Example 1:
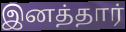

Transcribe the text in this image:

இனத்தார்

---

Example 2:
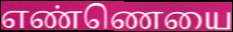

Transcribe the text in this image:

எண்ணெயை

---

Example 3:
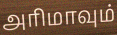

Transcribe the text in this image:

அரிமாவும்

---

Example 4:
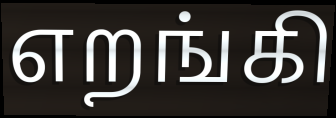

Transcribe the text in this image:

எறங்கி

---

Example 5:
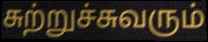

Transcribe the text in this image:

சுற்றுச்சுவரும்